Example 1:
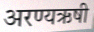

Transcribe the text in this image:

अरण्यऋषी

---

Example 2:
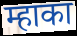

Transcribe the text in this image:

म्हाका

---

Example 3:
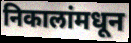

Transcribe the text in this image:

निकालांमधून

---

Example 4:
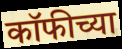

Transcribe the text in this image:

कॉफीच्या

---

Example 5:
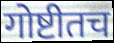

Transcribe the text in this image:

गोष्टीतच